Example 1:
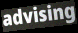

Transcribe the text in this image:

advising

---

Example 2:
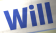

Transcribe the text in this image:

Will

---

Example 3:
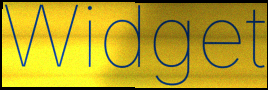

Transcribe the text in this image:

Widget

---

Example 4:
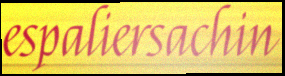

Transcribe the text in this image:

espaliersachin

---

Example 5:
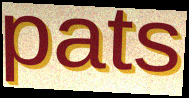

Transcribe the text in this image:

pats